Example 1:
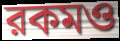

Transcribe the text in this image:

রকমও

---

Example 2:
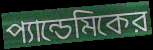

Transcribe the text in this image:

প্যান্ডেমিকের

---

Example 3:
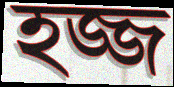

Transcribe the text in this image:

হজ্জ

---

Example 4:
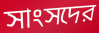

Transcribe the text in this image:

সাংসদের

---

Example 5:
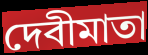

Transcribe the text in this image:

দেবীমাতা